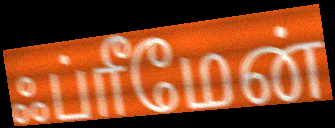
ஃப்ரீமேன்